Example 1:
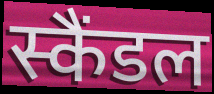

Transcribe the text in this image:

स्कैंडल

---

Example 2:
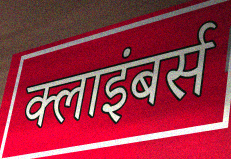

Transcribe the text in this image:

क्लाइंबर्स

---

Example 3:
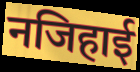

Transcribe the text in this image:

नजिहाई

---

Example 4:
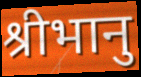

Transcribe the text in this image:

श्रीभानु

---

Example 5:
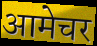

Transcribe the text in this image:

आमेचर